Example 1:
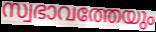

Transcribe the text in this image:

സ്വഭാവത്തേയും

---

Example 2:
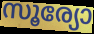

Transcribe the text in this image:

സൂര്യോ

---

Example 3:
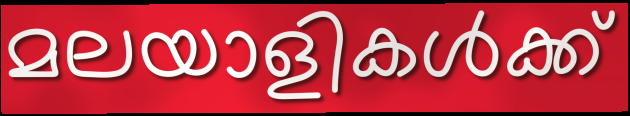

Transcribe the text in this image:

മലയാളികൾക്ക്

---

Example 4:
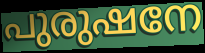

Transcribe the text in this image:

പുരുഷനേ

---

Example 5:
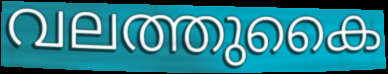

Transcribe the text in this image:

വലത്തുകൈ